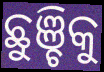
ଛୁଞ୍ଚିକୁ